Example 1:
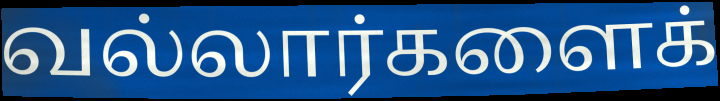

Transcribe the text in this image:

வல்லார்களைக்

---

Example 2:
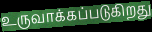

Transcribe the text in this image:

உருவாக்கப்படுகிறது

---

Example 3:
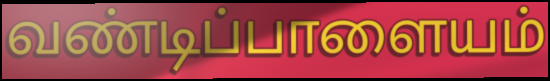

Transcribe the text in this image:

வண்டிப்பாளையம்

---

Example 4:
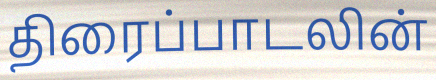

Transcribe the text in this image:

திரைப்பாடலின்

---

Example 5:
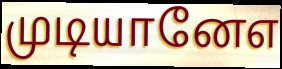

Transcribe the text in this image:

முடியானேஎ